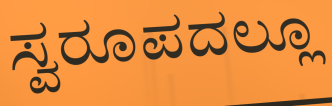
ಸ್ವರೂಪದಲ್ಲೂ